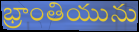
భ్రాంతియును